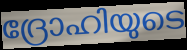
ദ്രോഹിയുടെ